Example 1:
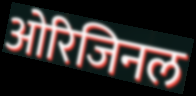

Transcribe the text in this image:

ओरिजिनल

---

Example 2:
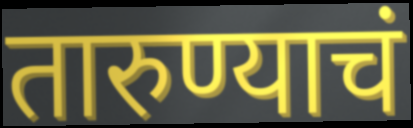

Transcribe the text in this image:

तारुण्याचं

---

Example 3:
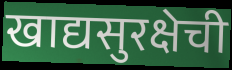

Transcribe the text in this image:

खाद्यसुरक्षेची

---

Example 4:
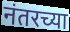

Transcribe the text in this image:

नंतरच्या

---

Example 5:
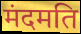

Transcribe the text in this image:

मंदमति